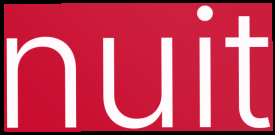
nuit